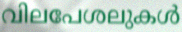
വിലപേശലുകൾ